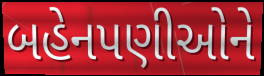
બહેનપણીઓને